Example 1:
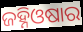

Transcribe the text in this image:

ଜହ୍ନିଓଷାର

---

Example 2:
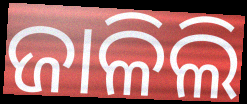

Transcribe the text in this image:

ଜାଳିଲି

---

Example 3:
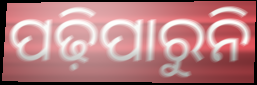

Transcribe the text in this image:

ପଢ଼ିପାରୁନି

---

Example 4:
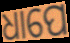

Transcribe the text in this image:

ଧାପେ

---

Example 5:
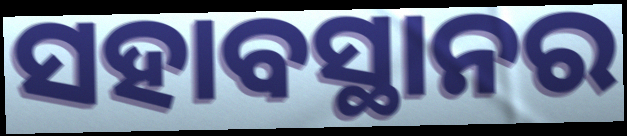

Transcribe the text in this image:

ସହାବସ୍ଥାନର